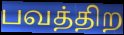
பவத்திற